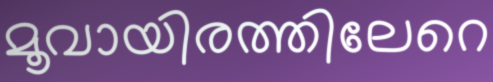
മൂവായിരത്തിലേറെ